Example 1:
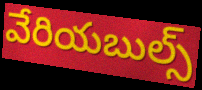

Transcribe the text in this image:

వేరియబుల్స్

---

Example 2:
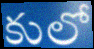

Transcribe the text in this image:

కులో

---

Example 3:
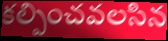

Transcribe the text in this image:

కల్పించవలసిన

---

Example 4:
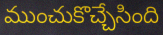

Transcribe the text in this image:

ముంచుకొచ్చేసింది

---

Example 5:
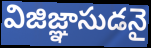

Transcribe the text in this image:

విజిజ్ఞాసుడనై